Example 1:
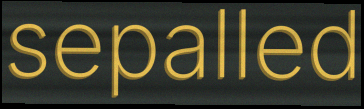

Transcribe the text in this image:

sepalled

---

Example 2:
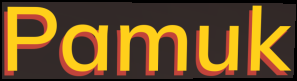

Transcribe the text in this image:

Pamuk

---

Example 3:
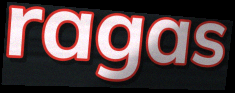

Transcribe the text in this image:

ragas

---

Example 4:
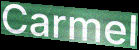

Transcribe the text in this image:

Carmel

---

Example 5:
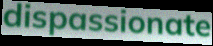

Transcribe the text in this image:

dispassionate